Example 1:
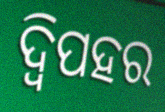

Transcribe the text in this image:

ଦ୍ୱିପହର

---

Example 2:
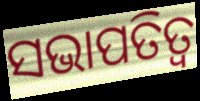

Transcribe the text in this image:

ସଭାପତିତ୍ଵ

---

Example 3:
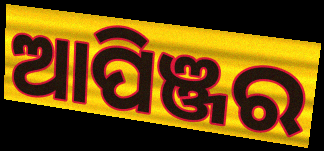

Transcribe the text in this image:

ଆପିଞ୍ଜର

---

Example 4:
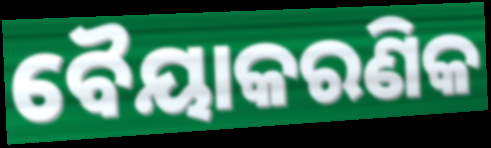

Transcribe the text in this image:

ବୈୟାକରଣିକ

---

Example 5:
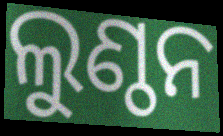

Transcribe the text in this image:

ଲୁଣ୍ଠନ